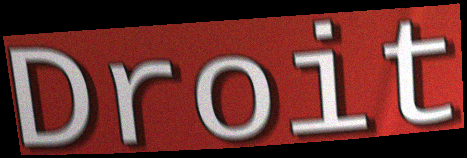
Droit